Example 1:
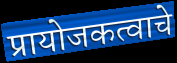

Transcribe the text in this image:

प्रायोजकत्वाचे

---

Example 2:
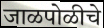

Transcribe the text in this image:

जाळपोळीचे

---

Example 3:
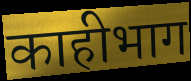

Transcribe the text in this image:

काहीभाग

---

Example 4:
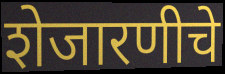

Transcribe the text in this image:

शेजारणीचे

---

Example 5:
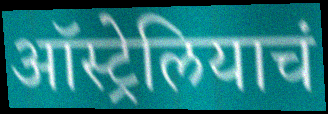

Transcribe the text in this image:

ऑस्ट्रेलियाचं